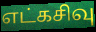
எட்கசிவு